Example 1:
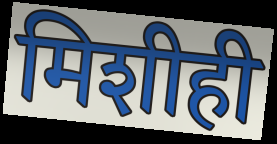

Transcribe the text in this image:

मिशीही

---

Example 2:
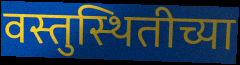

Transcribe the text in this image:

वस्तुस्थितीच्या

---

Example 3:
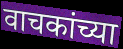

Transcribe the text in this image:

वाचकांच्या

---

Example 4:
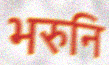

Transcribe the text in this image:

भरुनि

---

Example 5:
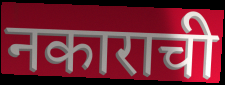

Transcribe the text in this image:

नकाराची